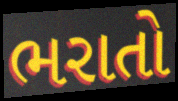
ભરાતો